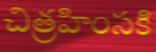
చిత్రహింసకి